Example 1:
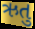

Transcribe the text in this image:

ઋતુ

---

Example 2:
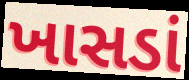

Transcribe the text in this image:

ખાસડાં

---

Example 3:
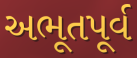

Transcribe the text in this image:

અભૂતપૂર્વ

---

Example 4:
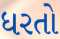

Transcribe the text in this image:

ધરતો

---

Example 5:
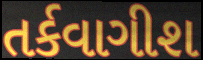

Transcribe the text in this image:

તર્કવાગીશ